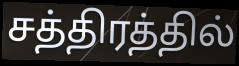
சத்திரத்தில்